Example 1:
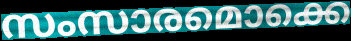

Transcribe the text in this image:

സംസാരമൊക്കെ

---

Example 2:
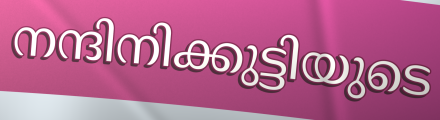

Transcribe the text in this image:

നന്ദിനിക്കുട്ടിയുടെ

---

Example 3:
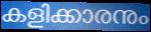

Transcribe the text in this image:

കളിക്കാരനും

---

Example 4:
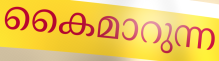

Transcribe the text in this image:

കൈമാറുന്ന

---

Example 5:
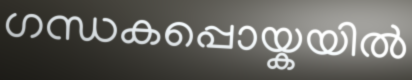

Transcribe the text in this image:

ഗന്ധകപ്പൊയ്കയിൽ